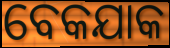
ବେକଯାକ